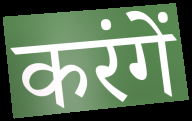
करंगें